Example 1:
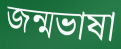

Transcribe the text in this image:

জন্মভাষা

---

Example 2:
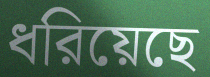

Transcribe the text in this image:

ধরিয়েছে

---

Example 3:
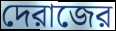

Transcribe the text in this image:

দেরাজের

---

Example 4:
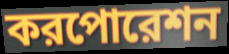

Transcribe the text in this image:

করপোরেশন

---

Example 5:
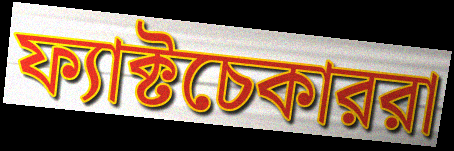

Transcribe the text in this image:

ফ্যাক্টচেকাররা